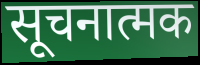
सूचनात्मक